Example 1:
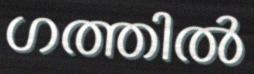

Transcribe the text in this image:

ഗത്തിൽ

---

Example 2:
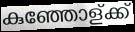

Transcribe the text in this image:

കുഞ്ഞോള്ക്ക്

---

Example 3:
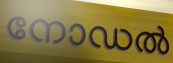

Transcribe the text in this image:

നോഡൽ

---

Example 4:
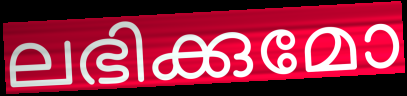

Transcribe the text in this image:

ലഭിക്കുമോ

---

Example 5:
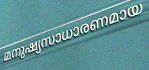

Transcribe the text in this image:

മനുഷ്യസാധാരണമായ